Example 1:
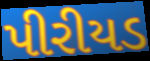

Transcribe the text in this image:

પીરીયડ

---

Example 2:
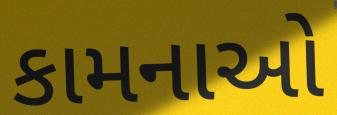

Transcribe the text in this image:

કામનાઓ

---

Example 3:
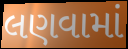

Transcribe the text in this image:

લણવામાં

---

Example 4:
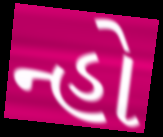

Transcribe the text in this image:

ન્હો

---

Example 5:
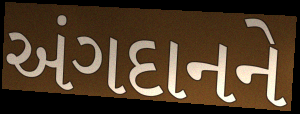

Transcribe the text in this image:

અંગદાનને